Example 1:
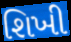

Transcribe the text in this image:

શિખી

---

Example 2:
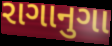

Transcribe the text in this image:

રાગાનુગા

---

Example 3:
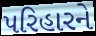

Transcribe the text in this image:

પરિહારને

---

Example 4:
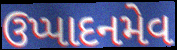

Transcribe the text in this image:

ઉપ્પાદનમેવ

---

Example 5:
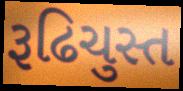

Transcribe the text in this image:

રૂઢિચુસ્ત